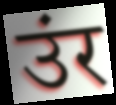
उंर